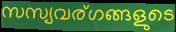
സസ്യവര്ഗങ്ങളുടെ